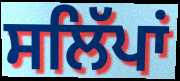
ਸਲਿੱਪਾਂ